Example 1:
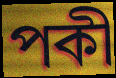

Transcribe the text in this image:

পকী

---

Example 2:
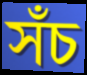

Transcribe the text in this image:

সঁচ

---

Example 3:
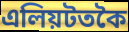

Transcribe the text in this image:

এলিয়টতকৈ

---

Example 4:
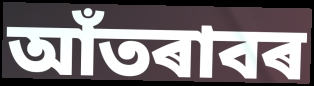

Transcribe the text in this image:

আঁতৰাবৰ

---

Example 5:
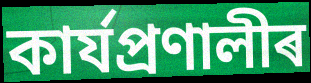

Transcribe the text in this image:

কাৰ্যপ্ৰণালীৰ